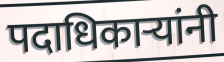
पदाधिकाऱ्यांनी